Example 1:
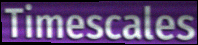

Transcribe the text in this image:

Timescales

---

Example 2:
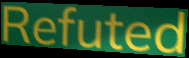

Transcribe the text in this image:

Refuted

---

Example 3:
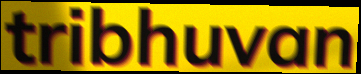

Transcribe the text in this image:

tribhuvan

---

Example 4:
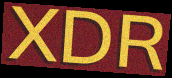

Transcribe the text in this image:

XDR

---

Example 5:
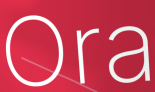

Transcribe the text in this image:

Ora